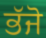
ਭੱਜੋ